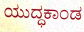
ಯುದ್ಧಕಾಂಡ